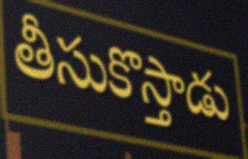
తీసుకొస్తాడు